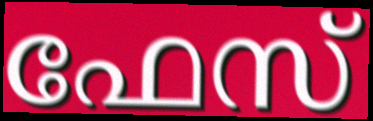
ഫേസ്